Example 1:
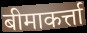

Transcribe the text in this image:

बीमाकर्त्ता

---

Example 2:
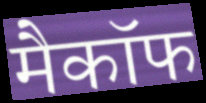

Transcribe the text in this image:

मैकॉफ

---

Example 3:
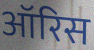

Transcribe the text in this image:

ऑरिस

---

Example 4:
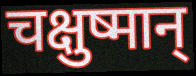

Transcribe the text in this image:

चक्षुष्मान्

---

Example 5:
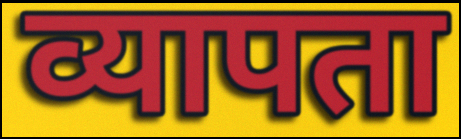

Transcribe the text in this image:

व्यापता